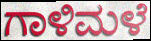
ಗಾಳಿಮಳೆ